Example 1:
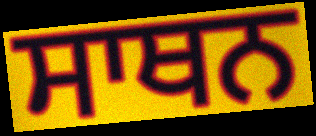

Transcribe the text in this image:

ਸਾਥਨ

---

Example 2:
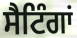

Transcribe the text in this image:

ਸੈਟਿੰਗਾਂ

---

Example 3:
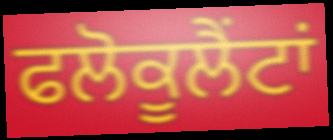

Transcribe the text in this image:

ਫਲੋਕੂਲੈਂਟਾਂ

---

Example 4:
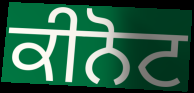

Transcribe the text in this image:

ਕੀਨੋਟ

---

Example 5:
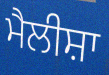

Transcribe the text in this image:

ਮੈਲੀਸ਼ਾ